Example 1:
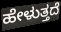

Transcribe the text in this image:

ಹೇಳುತ್ತದೆ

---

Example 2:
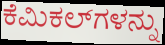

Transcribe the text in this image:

ಕೆಮಿಕಲ್‌ಗಳನ್ನು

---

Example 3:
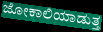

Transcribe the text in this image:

ಜೋಕಾಲಿಯಾಡುತ್ತ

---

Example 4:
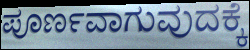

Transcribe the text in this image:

ಪೂರ್ಣವಾಗುವುದಕ್ಕೆ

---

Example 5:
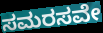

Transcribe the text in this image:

ಸಮರಸವೇ